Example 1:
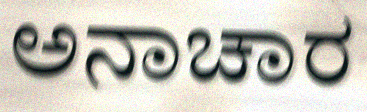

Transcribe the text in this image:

ಅನಾಚಾರ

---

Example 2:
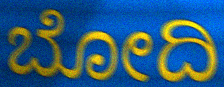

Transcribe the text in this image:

ಬೋದಿ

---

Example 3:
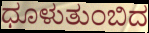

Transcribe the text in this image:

ಧೂಳುತುಂಬಿದ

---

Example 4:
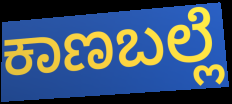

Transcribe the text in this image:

ಕಾಣಬಲ್ಲೆ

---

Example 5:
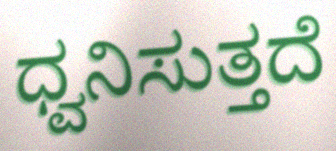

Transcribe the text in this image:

ಧ್ವನಿಸುತ್ತದೆ